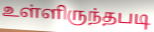
உள்ளிருந்தபடி